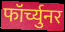
फॉर्च्युनर